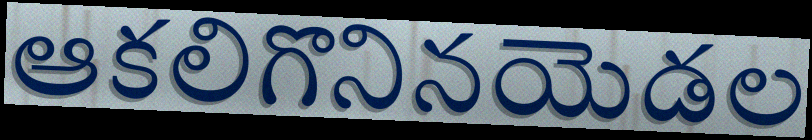
ఆకలిగొనినయెడల